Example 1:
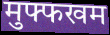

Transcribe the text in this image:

मुफ्फखम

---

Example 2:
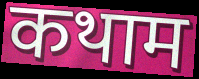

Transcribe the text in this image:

कथाम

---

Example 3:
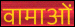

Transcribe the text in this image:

वामाओं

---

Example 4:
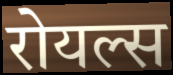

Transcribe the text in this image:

रोयल्स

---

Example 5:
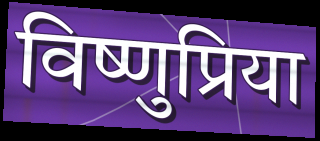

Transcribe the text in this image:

विष्णुप्रिया